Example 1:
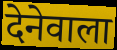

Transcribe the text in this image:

देनेवाला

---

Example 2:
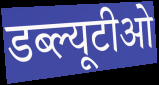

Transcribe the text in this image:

डब्ल्यूटीओ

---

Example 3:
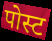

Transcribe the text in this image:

पोस्ट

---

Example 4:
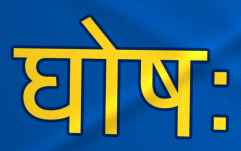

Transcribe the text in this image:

घोषः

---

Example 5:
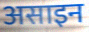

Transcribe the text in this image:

असाइन